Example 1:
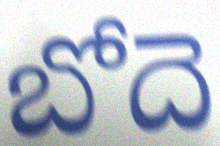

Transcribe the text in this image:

బోదె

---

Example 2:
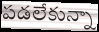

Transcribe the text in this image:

పడలేకున్నా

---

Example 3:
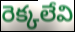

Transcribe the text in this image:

రెక్కలేవి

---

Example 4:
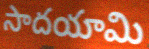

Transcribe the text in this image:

సాదయామి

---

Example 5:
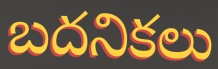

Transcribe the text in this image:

బదనికలు